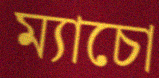
ম্যাচো